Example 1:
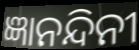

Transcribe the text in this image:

ଜ୍ଞାନନ୍ଦିନୀ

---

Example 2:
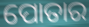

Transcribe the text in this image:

ପୋତାର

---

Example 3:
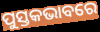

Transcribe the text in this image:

ପୁସ୍ତକଭାବରେ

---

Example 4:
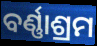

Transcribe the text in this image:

ବର୍ଣ୍ଣାଶ୍ରମ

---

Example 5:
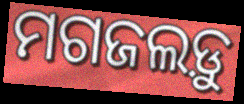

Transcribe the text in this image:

ମଗଜଲଡ଼ୁ